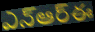
ఎన్ఆర్ఈ